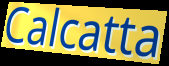
Calcatta